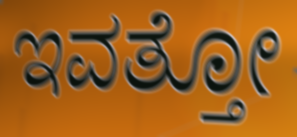
ಇವತ್ತೋ